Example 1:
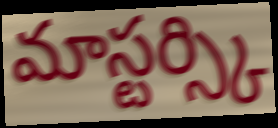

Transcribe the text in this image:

మాస్టర్స్కి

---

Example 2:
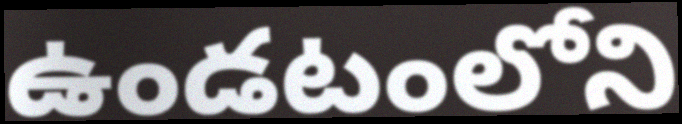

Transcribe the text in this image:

ఉండటంలోని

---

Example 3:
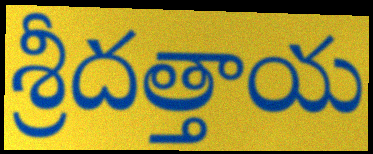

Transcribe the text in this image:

శ్రీదత్తాయ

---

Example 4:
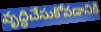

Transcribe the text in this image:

వృద్ధిచేసుకోవడానికి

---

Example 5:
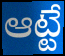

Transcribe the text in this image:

ఆట్టే